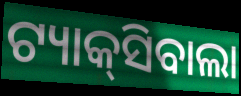
ଟ୍ୟାକ୍‌ସିବାଲା